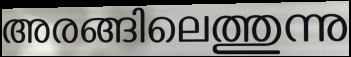
അരങ്ങിലെത്തുന്നു